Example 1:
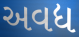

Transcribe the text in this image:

અવદ્ય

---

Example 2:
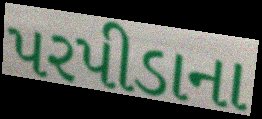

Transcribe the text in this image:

પરપીડાના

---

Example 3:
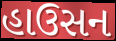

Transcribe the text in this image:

હાઉસન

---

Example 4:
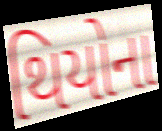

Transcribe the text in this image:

થિયોના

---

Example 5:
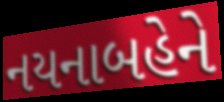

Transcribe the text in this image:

નયનાબહેને